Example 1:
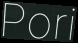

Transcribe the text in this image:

Pori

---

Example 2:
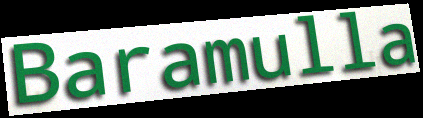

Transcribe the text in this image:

Baramulla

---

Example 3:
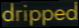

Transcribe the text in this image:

dripped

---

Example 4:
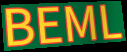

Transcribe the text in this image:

BEML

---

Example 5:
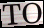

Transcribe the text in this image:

TO